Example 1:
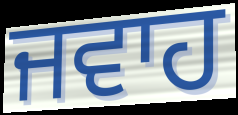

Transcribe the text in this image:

ਜਵਾਹ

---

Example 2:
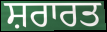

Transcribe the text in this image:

ਸ਼ਰਾਰਤ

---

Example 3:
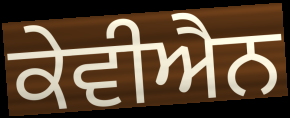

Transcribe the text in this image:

ਕੇਵੀਐਨ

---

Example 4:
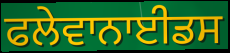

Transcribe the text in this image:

ਫਲੇਵਾਨਾਈਡਸ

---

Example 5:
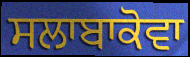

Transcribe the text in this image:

ਸਲਾਬਾਕੋਵਾ